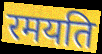
रमयति